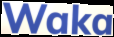
Waka